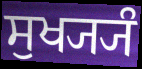
ਸੁਖ੍ਯ੍ਯੰ